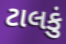
ટાલકું